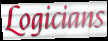
Logicians